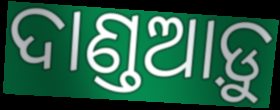
ଦାଣ୍ଡଆଡ଼ୁ